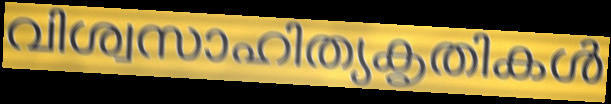
വിശ്വസാഹിത്യകൃതികൾ